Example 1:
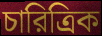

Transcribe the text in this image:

চারিত্রিক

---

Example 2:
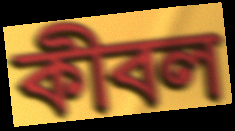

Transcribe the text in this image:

কীবল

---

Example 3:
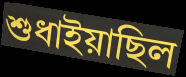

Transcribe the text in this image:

শুধাইয়াছিল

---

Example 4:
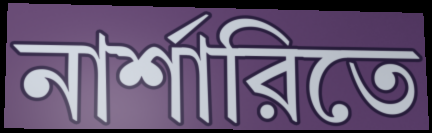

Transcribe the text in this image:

নার্শারিতে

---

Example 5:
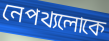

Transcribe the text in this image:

নেপথ্যলোকে